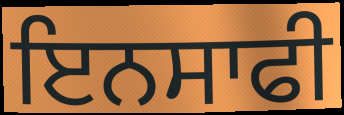
ਇਨਸਾਫੀ